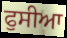
ਫੁਸੀਆ